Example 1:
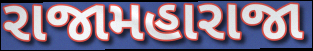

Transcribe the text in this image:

રાજામહારાજા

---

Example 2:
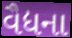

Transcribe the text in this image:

વૈદ્યના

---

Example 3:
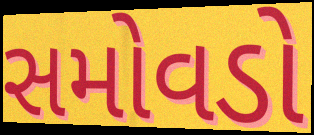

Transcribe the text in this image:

સમોવડો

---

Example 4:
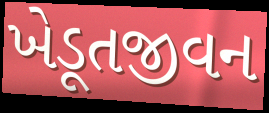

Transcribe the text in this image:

ખેડૂતજીવન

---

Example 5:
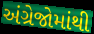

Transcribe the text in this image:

અંગ્રેજોમાંથી